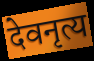
देवनृत्य